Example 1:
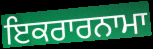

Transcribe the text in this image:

ਇਕਰਾਰਨਾਮਾ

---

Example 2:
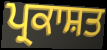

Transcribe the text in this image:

ਪ੍ਰਕਾਸ਼ਤ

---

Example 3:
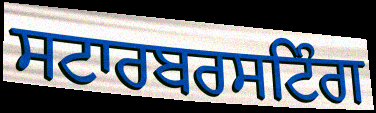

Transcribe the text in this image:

ਸਟਾਰਬਰਸਟਿੰਗ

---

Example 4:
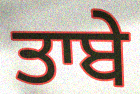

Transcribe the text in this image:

ਤਾਬੇ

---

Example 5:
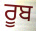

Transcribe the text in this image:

ਰੂਬ